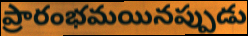
ప్రారంభమయినప్పుడు